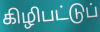
கிழிபட்டுப்